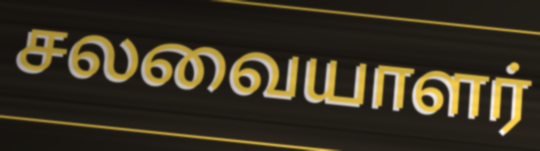
சலவையாளர்